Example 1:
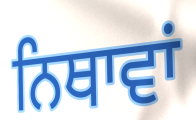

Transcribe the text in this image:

ਨਿਥਾਵਾਂ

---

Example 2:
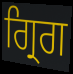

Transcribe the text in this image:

ਗ੍ਰਿਗ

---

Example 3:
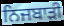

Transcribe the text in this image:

ਨਿਜਬਾੜੀ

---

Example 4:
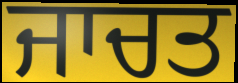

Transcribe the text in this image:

ਜਾਚਤ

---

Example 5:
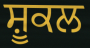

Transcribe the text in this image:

ਸ਼ੂਕਲ